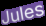
Jules